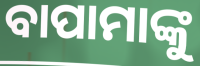
ବାପାମାଙ୍କୁ